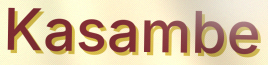
Kasambe